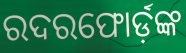
ରଦରଫୋର୍ଡ଼ଙ୍କ